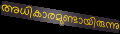
അധികാരമുണ്ടായിരുന്നു